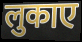
लुकाए